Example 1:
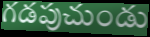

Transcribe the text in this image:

గడపుచుండు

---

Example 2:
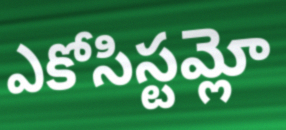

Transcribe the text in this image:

ఎకోసిస్టమ్లో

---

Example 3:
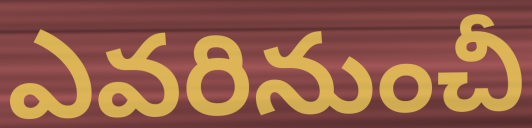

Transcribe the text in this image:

ఎవరినుంచీ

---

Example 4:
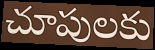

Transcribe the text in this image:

చూపులకు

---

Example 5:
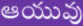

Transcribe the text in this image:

ఆయువు